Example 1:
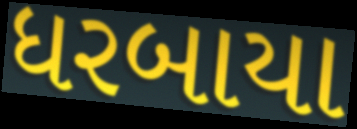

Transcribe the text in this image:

ધરબાયા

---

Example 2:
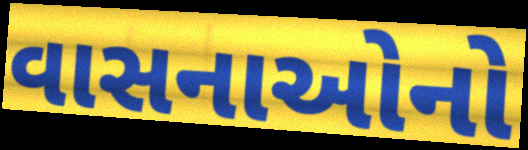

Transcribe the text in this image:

વાસનાઓનો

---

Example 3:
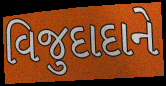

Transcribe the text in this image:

વિજુદાદાને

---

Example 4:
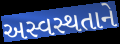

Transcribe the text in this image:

અસ્વસ્થતાને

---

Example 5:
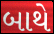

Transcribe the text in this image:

બાથે